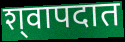
श्वापदात